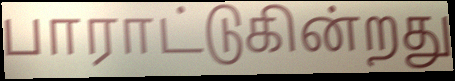
பாராட்டுகின்றது